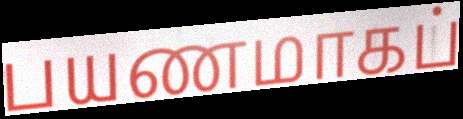
பயணமாகப்